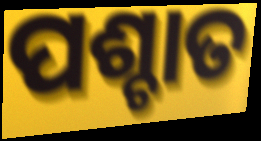
ପଶ୍ଚାତ